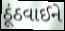
ઠૂંઠવાઈને